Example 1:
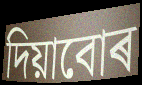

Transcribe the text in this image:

দিয়াবোৰ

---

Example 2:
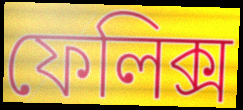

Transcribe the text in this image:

ফেলিক্স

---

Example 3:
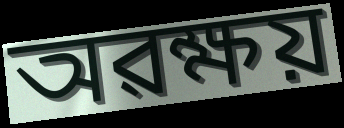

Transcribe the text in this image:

অৱক্ষয়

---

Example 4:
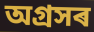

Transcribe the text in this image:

অগ্ৰসৰ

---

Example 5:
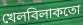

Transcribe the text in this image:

খেলবিলাকতো